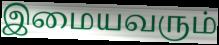
இமையவரும்